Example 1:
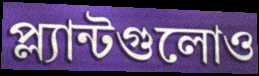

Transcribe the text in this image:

প্ল্যান্টগুলোও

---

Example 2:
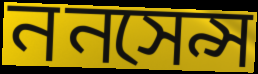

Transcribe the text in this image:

ননসেন্স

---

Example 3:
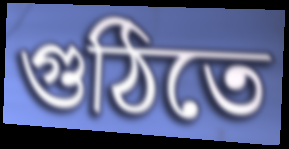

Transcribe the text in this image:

গুঠিতে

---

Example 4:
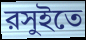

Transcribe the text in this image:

রসুইতে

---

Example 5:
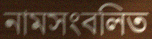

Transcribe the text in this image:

নামসংবলিত